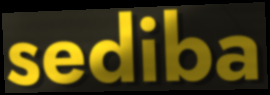
sediba